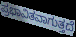
ಪ್ರಭಾವಿತವಾಗುತ್ತದೆ